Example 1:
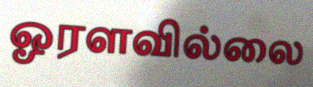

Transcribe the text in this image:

ஓரளவில்லை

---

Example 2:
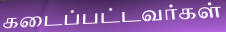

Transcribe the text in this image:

கடைப்பட்டவர்கள்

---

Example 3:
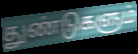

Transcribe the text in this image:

துண்டுகளும்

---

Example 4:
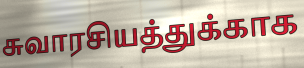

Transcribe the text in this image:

சுவாரசியத்துக்காக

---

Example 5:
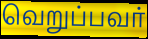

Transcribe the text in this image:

வெறுப்பவர்